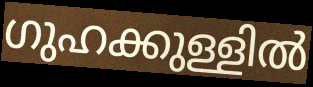
ഗുഹക്കുള്ളിൽ